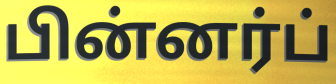
பின்னர்ப்